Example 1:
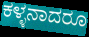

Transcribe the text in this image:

ಕಳ್ಳನಾದರೂ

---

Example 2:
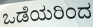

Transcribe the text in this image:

ಒಡೆಯರಿಂದ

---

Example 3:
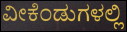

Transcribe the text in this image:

ವೀಕೆಂಡುಗಳಲ್ಲಿ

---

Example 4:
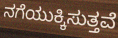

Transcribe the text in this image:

ನಗೆಯುಕ್ಕಿಸುತ್ತವೆ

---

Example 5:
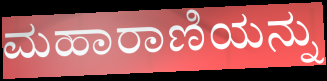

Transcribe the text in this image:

ಮಹಾರಾಣಿಯನ್ನು